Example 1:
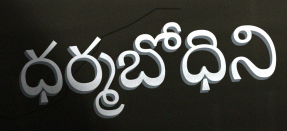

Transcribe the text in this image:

ధర్మబోధిని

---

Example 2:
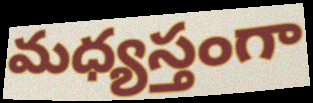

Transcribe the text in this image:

మధ్యస్తంగా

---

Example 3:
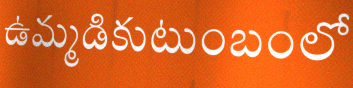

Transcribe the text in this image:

ఉమ్మడికుటుంబంలో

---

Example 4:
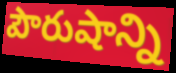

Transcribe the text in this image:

పౌరుషాన్ని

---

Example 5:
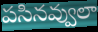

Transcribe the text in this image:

పసినవ్వులా